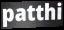
patthi